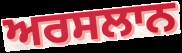
ਅਰਸਲਾਨ